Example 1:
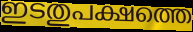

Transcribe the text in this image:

ഇടതുപക്ഷത്തെ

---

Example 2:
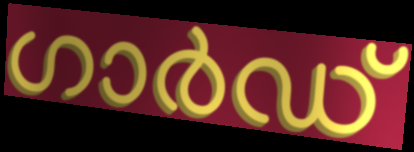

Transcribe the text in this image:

ഗാർഡ്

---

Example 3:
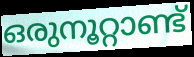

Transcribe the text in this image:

ഒരുനൂറ്റാണ്ട്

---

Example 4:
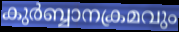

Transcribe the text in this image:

കുർബ്ബാനക്രമവും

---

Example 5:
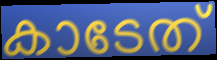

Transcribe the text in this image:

കാടേത്